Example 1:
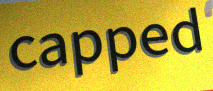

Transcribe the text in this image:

capped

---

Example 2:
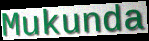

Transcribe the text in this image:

Mukunda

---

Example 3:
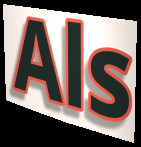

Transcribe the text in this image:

Als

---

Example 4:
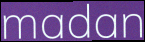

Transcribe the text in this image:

madan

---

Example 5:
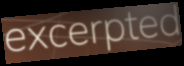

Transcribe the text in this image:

excerpted